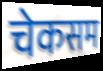
चेकसम